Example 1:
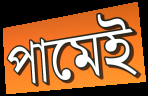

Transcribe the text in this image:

পামেই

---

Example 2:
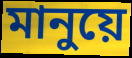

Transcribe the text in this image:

মানুয়ে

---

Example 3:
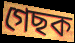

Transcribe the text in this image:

গেছক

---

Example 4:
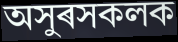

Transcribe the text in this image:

অসুৰসকলক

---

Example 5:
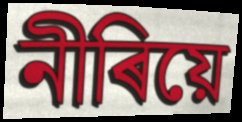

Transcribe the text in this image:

নীৰিয়ে